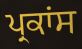
ਪ੍ਰਕਾਂਸ